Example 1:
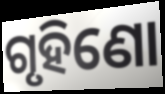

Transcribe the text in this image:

ଗୃହିଣୋ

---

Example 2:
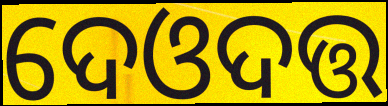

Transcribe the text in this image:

ଦେଓଦତ୍ତ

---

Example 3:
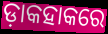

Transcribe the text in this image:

ଡ଼ାକହାକରେ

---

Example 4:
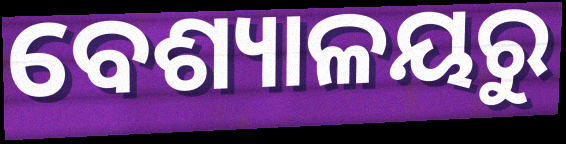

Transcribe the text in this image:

ବେଶ୍ୟାଳୟରୁ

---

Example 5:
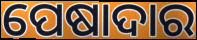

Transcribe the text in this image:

ପେଷାଦାର